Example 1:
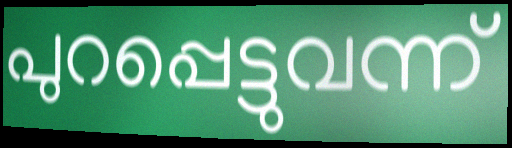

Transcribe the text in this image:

പുറപ്പെട്ടുവന്ന്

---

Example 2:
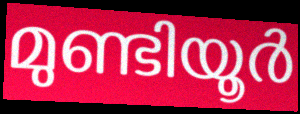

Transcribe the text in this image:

മുണ്ടിയൂർ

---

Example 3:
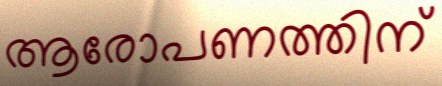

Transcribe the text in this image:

ആരോപണത്തിന്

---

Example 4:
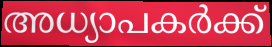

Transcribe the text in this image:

അധ്യാപകർക്ക്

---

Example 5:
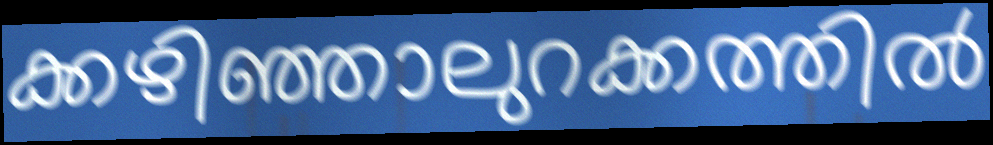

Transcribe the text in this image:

ക്കഴിഞ്ഞാലുറക്കത്തിൽ